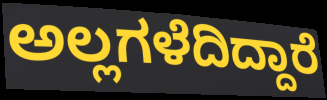
ಅಲ್ಲಗಳೆದಿದ್ದಾರೆ